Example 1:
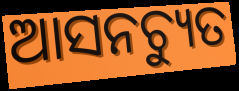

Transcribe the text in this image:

ଆସନଚ୍ୟୁତ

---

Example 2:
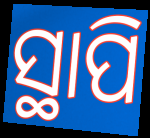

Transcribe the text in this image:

ସ୍ଥାପି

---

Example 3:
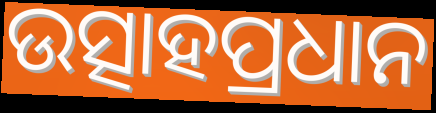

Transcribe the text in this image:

ଉତ୍ସାହପ୍ରଧାନ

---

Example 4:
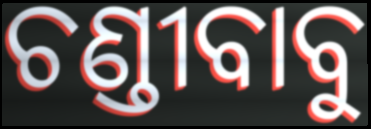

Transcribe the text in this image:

ଚଣ୍ଡୀବାବୁ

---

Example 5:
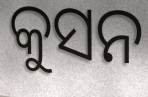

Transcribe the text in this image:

କୁସନ